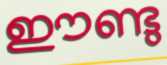
ഈണ്ടു